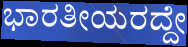
ಭಾರತೀಯರದ್ದೇ